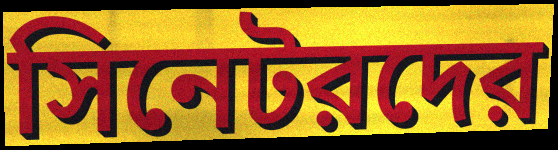
সিনেটরদের